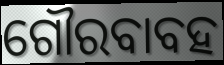
ଗୌରବାବହ